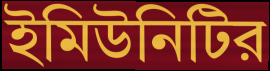
ইমিউনিটির